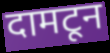
दामटून